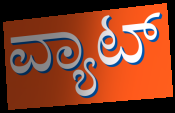
ವ್ಯಾಟ್